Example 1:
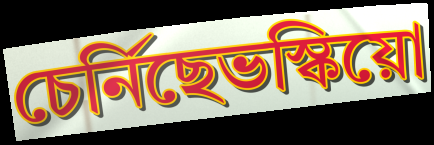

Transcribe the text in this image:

চেৰ্নিছেভস্কিয়ো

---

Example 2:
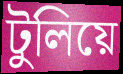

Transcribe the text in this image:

টুলিয়ে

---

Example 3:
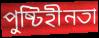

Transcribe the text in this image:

পুষ্টিহীনতা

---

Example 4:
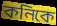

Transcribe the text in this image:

কনিকে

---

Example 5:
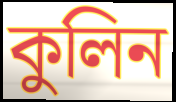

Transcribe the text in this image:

কুলিন